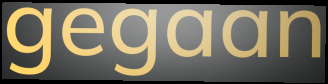
gegaan